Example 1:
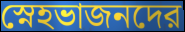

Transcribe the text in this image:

স্নেহভাজনদের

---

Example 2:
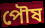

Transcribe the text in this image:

পৌষ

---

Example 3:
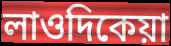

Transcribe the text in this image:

লাওদিকেয়া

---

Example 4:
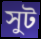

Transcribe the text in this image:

সুট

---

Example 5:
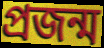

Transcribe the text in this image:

প্রজন্ম